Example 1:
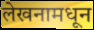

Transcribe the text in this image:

लेखनामधून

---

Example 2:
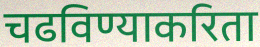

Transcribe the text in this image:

चढविण्याकरिता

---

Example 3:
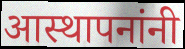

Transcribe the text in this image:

आस्थापनांनी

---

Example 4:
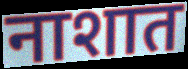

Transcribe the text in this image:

नाशात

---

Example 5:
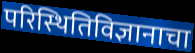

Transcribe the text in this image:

परिस्थितिविज्ञानाचा